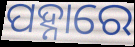
ପହ୍ନାରେ